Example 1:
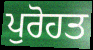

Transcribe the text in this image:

ਪੁਰੋਹਤ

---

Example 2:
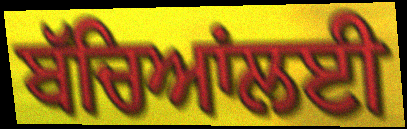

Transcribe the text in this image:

ਬੱਚਿਆਂਲਈ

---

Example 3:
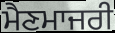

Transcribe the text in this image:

ਮੈਣਮਾਜਰੀ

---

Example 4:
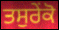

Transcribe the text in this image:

ਤਸੁਰੇਂਕੋ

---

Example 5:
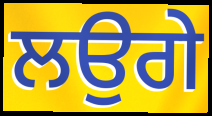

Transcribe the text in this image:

ਲਉਗੇ